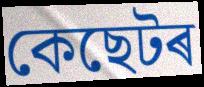
কেছেটৰ